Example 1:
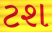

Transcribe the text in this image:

ટશ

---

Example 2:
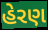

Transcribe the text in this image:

હેરણ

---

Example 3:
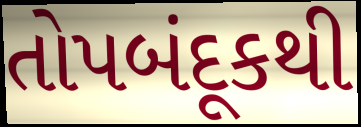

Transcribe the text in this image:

તોપબંદૂકથી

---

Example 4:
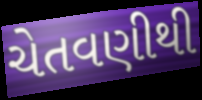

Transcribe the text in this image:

ચેતવણીથી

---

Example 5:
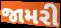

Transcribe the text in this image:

જામરી